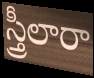
స్త్రీలారా